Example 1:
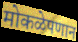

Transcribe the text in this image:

मोकळेपणान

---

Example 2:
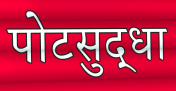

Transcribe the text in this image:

पोटसुद्धा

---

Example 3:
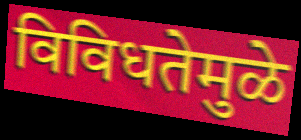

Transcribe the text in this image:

विविधतेमुळे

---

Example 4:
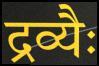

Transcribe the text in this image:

द्रव्यैः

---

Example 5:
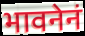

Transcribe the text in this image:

भावनेनं